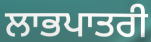
ਲਾਭਪਾਤਰੀ